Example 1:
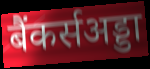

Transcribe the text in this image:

बैंकर्सअड्डा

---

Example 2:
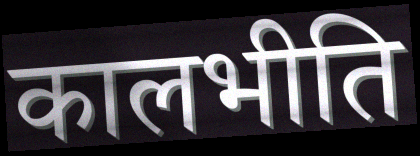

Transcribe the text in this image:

कालभीति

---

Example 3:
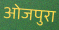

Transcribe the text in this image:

ओजपुरा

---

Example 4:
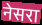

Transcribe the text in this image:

नेसरा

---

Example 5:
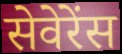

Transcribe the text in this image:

सेवेरेंस